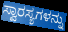
ಸ್ವಾರಸ್ಯಗಳನ್ನು